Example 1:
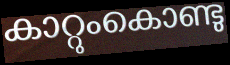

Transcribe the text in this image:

കാറ്റുംകൊണ്ടു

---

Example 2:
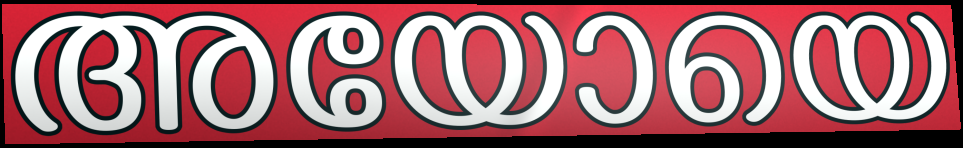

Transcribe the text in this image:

അയോയെ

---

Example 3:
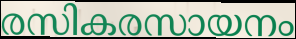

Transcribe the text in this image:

രസികരസായനം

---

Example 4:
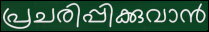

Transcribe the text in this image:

പ്രചരിപ്പിക്കുവാൻ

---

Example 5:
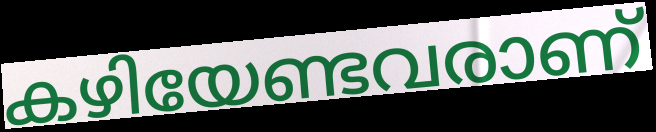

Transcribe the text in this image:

കഴിയേണ്ടവരാണ്